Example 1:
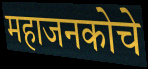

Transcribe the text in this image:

महाजनकोचे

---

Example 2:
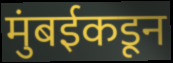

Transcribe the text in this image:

मुंबईकडून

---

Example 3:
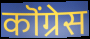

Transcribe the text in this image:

कॊंग्रेस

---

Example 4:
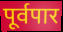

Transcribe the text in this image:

पूर्वपार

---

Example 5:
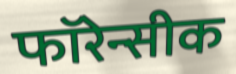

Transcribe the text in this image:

फॉरेन्सीक